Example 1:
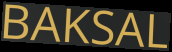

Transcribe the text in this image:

BAKSAL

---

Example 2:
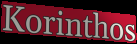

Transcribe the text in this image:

Korinthos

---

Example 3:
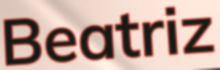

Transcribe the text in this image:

Beatriz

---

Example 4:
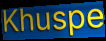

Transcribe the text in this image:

Khuspe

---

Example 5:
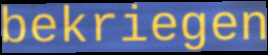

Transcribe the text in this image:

bekriegen